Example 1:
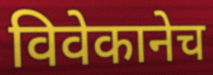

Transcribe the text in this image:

विवेकानेच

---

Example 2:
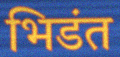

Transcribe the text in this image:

भिडंत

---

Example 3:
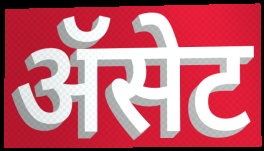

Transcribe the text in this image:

ॲसेट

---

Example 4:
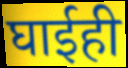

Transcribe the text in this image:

घाईही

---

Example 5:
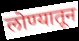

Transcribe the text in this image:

लोण्यातून